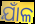
ଯାଁଳ